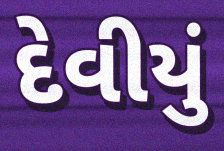
દેવીયું